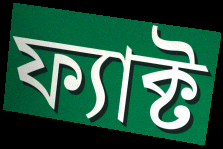
ফ্যাক্ট